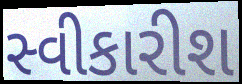
સ્વીકારીશ